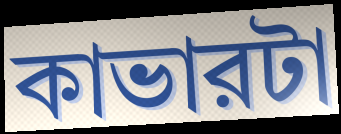
কাভারটা